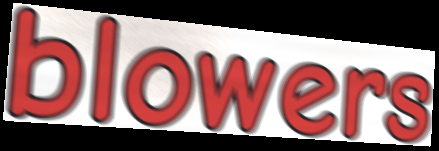
blowers